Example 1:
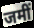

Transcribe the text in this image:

जमीं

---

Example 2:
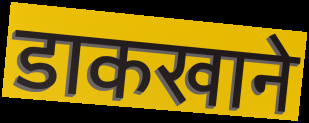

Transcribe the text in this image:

डाकखाने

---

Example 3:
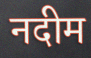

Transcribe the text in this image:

नदीम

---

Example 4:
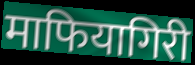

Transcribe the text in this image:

माफियागिरी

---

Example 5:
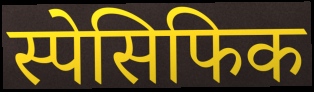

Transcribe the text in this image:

स्पेसिफिक